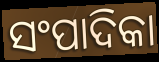
ସଂପାଦିକା